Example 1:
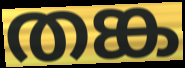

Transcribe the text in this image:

തങ്ക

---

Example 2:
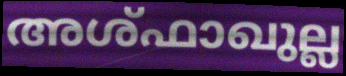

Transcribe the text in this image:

അശ്ഫാഖുല്ല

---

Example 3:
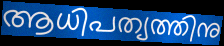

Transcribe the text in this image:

ആധിപത്യത്തിനു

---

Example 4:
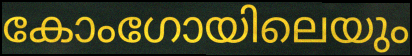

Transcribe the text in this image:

കോംഗോയിലെയും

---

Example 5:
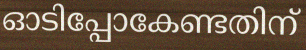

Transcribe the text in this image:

ഓടിപ്പോകേണ്ടതിന്